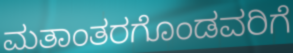
ಮತಾಂತರಗೊಂಡವರಿಗೆ